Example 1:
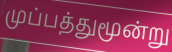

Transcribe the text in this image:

முப்பத்துமூன்று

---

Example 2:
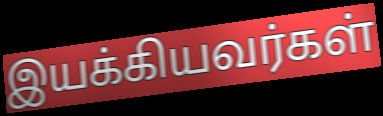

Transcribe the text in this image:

இயக்கியவர்கள்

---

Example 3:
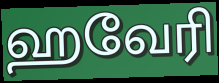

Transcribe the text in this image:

ஹவேரி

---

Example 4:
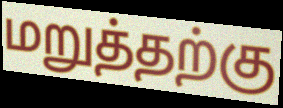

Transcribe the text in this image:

மறுத்தற்கு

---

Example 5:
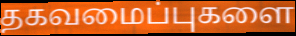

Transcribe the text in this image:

தகவமைப்புகளை